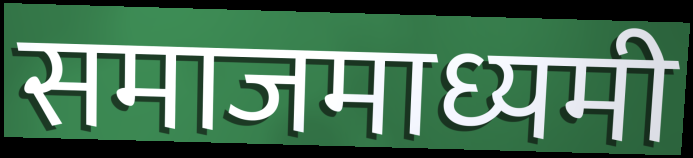
समाजमाध्यमी